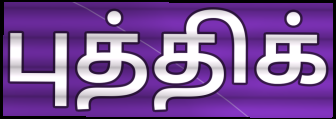
புத்திக்